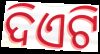
ଦିଏଟି